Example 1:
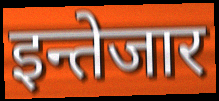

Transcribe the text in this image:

इन्तेजार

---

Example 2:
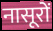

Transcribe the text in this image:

नासूरों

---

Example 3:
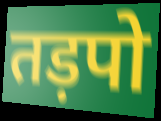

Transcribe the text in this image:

तड़पो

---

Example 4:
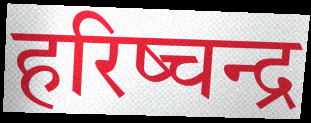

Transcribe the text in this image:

हरिष्चन्द्र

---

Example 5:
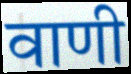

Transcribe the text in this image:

वाणी